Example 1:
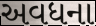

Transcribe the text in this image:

અવધના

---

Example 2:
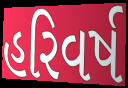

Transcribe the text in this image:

હરિવર્ષ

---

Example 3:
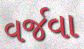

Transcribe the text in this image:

વર્જવા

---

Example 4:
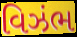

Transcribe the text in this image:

વિઝંભ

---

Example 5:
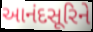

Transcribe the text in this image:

આનંદસૂરિને